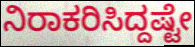
ನಿರಾಕರಿಸಿದ್ದಷ್ಟೇ